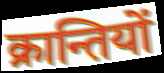
क्रान्तियों